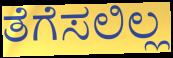
ತೆಗೆಸಲಿಲ್ಲ